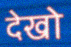
देखो